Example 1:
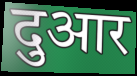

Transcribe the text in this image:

दुआर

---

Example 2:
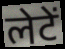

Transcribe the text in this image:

लेटें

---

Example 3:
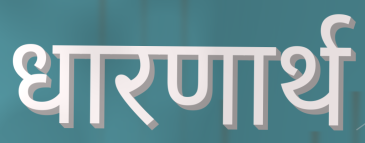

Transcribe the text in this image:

धारणार्थ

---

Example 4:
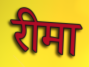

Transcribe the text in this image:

रीमा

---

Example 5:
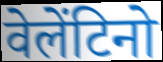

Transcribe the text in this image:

वेलेंटिनो